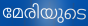
മേരിയുടെ